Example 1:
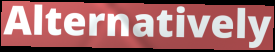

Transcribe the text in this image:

Alternatively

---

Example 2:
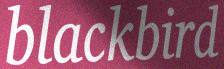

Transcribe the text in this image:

blackbird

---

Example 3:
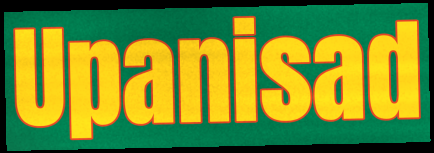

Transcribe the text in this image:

Upanisad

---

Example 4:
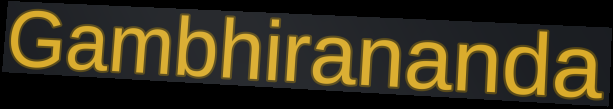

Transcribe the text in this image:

Gambhirananda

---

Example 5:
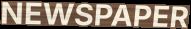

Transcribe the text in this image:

NEWSPAPER